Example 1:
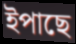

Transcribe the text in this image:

ইপাছে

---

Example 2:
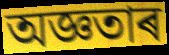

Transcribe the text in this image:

অজ্ঞতাৰ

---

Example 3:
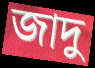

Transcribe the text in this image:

জাদু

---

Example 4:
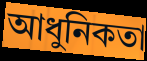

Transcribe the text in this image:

আধুনিকতা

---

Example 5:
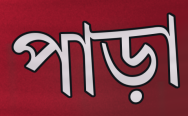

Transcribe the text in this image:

পাড়া